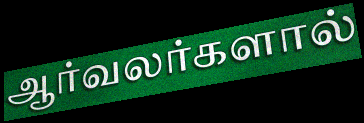
ஆர்வலர்களால்